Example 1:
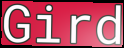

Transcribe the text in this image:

Gird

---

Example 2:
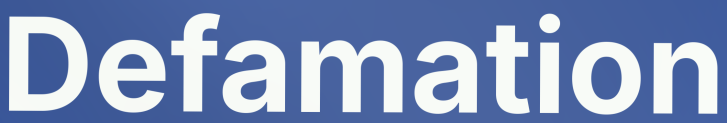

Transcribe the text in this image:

Defamation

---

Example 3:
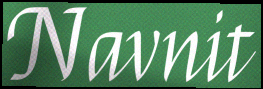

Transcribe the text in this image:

Navnit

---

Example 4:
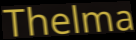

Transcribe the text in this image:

Thelma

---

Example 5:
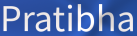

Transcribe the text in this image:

Pratibha